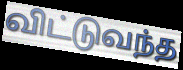
விட்டுவந்த